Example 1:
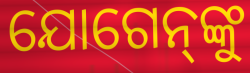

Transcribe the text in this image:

ଯୋଗେନ୍‌ଙ୍କୁ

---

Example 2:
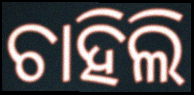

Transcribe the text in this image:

ଚାହିଲି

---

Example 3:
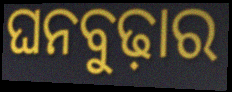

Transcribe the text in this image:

ଘନବୁଢ଼ାର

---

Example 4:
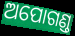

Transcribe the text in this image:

ଅପୋଗଣ୍ଡ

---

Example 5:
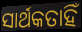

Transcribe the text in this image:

ସାର୍ଥକତାହିଁ